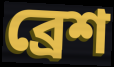
ব্রেশ